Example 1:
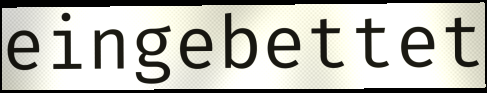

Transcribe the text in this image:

eingebettet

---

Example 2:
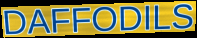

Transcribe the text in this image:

DAFFODILS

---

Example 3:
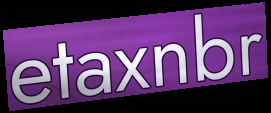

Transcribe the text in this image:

etaxnbr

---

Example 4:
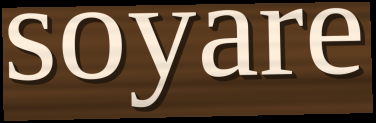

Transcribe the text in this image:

soyare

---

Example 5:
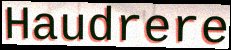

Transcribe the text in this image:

Haudrere